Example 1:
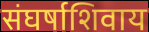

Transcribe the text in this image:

संघर्षाशिवाय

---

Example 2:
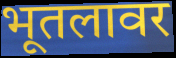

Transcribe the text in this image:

भूतलावर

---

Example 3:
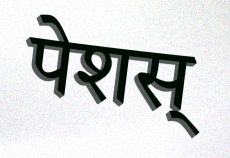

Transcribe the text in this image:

पेशस्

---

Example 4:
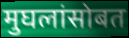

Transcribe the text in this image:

मुघलांसोबत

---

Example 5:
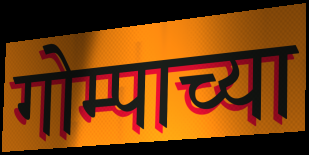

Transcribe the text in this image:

गोम्पाच्या